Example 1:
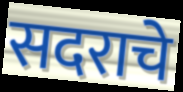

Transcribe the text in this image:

सदराचे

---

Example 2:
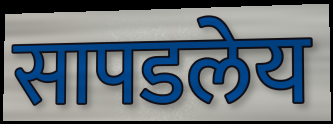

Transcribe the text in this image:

सापडलेय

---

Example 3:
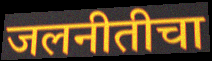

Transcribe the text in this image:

जलनीतीचा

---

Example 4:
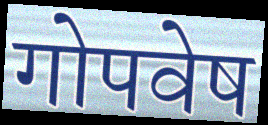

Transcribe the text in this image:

गोपवेष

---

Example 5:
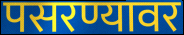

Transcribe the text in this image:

पसरण्यावर